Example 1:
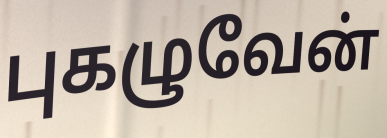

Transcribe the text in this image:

புகழுவேன்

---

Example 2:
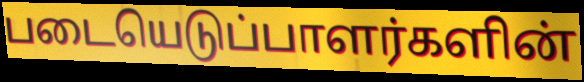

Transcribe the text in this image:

படையெடுப்பாளர்களின்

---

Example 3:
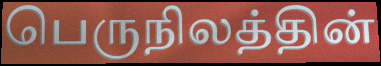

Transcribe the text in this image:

பெருநிலத்தின்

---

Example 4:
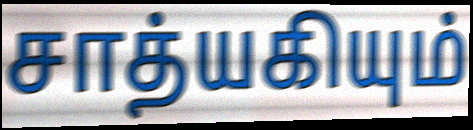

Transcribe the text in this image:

சாத்யகியும்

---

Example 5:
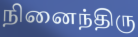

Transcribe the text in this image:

நினைந்திரு